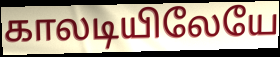
காலடியிலேயே